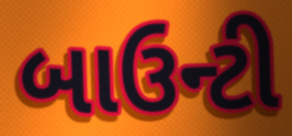
બાઉન્ટી